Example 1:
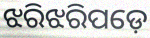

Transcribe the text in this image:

ଝରିଝରିପଡ଼େ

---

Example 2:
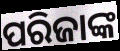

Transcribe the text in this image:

ପରିଜାଙ୍କ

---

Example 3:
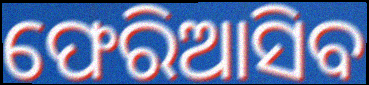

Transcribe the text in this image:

ଫେରିଆସିବ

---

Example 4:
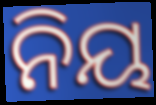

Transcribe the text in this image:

ନିୟ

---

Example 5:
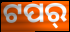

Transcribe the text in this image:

ଟପର୍